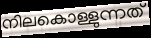
നിലകൊള്ളുന്നത്